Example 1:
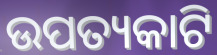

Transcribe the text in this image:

ଉପତ୍ୟକାଟି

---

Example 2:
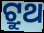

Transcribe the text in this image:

ଟ୍ରୁଥ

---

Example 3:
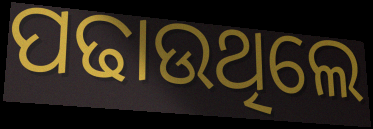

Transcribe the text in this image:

ପଢାଉଥିଲେ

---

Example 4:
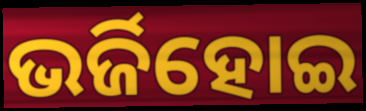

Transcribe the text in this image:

ଭର୍ଜିହୋଇ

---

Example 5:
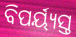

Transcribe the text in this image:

ବିପର୍ୟ୍ୟସ୍ତ